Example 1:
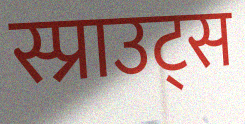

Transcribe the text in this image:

स्प्राउट्स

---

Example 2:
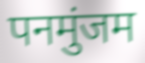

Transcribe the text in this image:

पनमुंजम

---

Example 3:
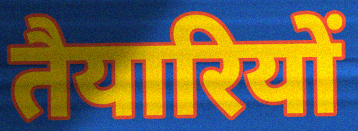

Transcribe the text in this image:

तैयारियों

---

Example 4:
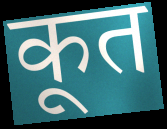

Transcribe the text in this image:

कूत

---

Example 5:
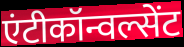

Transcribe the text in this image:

एंटीकॉन्वल्सेंट